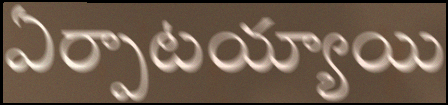
ఏర్పాటయ్యాయి